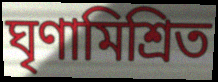
ঘৃণামিশ্রিত